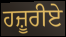
ਹਜ਼ੂਰੀਏ